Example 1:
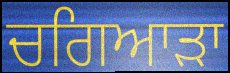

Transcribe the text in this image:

ਚਗਿਆੜਾ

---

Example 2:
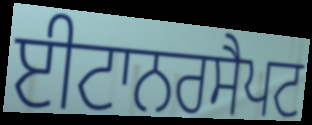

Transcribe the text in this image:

ਈਟਾਨਰਸੈਪਟ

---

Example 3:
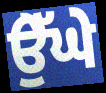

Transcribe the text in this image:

ਉੇੱਘੇ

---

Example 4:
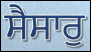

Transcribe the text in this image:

ਸੈਸਾਰੁ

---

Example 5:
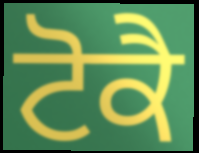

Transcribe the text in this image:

ਟੋਕੈ